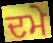
ਦਮੇ